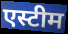
एस्टीम